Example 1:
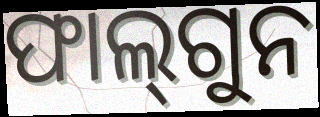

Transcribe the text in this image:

ଫାଲ୍‍ଗୁନ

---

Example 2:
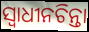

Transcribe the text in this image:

ସ୍ୱାଧୀନଚିନ୍ତା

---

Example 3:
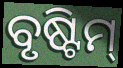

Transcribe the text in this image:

ବୃଷ୍ଟିମ୍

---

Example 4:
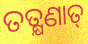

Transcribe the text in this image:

ତତ୍କ୍ଷଣାତ୍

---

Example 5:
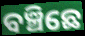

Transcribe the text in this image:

ବଞ୍ଚିଛେ